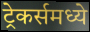
ट्रेकर्समध्ये